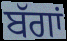
ਬੱਗਾਂ